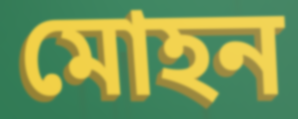
মোহন